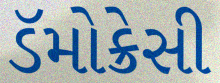
ડૅમોક્રેસી